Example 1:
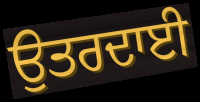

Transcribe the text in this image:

ਉਤਰਦਾਈ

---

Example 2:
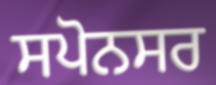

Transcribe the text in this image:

ਸਪੋਨਸਰ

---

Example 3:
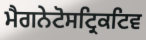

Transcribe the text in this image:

ਮੈਗਨੇਟੋਸਟ੍ਰਿਕਟਿਵ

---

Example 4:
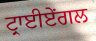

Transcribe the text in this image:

ਟ੍ਰਾਈਏਂਗਲ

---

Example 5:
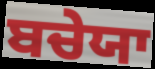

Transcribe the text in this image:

ਬਚੇਯਾ